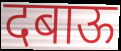
दबाऊ